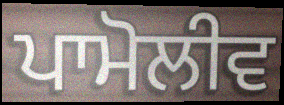
ਪਾਮੋਲੀਵ